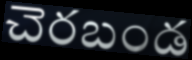
చెరబండ